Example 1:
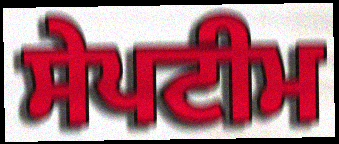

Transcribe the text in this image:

ਸੇਪਟੀਮ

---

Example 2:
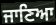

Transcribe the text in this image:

ਜਾਣਿਆ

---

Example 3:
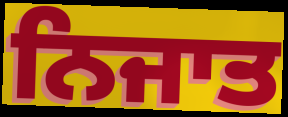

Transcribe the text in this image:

ਨਿਜਾਤ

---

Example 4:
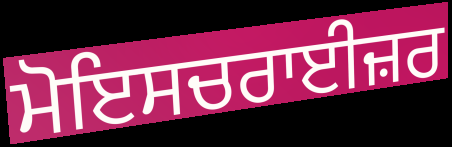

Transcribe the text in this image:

ਮੋਇਸਚਰਾਈਜ਼ਰ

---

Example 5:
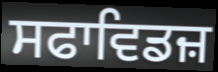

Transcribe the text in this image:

ਸਫਾਵਿਡਜ਼